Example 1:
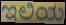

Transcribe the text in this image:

ಇಲಿಯ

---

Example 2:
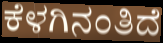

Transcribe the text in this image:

ಕೆಳಗಿನಂತಿದೆ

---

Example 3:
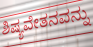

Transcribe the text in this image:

ಶಿಷ್ಯವೇತನವನ್ನು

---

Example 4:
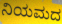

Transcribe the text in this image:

ನಿಯಮದ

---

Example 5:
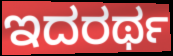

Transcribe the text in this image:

ಇದರರ್ಥ